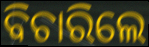
ବିଚାରିଲେ